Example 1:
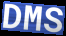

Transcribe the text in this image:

DMS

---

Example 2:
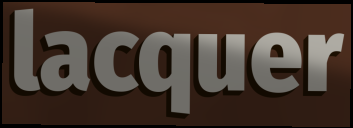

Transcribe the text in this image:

lacquer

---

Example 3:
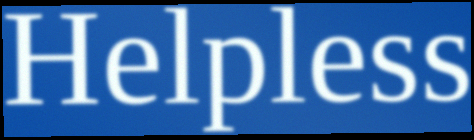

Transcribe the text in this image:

Helpless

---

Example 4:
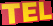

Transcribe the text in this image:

TEL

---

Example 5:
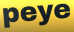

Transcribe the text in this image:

peye